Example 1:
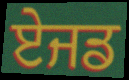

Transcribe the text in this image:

ਏਜਡ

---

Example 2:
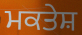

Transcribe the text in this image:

ਮਕਤੇਸ਼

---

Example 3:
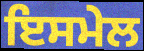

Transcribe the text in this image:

ਇਸਮੇਲ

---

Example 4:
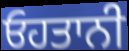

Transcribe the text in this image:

ਓਹਤਾਨੀ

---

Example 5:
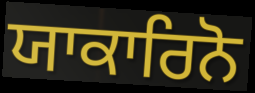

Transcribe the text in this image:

ਯਾਕਾਰਿਨੋ